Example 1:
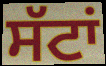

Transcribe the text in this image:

ਸੱਟਾਂ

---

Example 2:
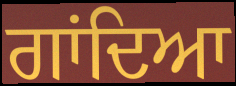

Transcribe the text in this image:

ਗਾਂਦਿਆ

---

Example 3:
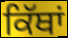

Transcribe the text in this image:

ਕਿੱਥਾਂ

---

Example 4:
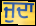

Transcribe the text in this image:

ਜੁਦਾ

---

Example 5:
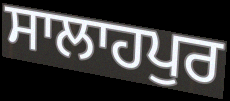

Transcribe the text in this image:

ਸਾਲਾਹਪੁਰ